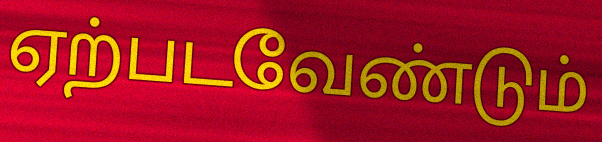
ஏற்படவேண்டும்